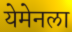
येमेनला